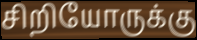
சிறியோருக்கு